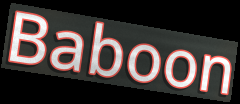
Baboon